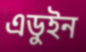
এডুইন